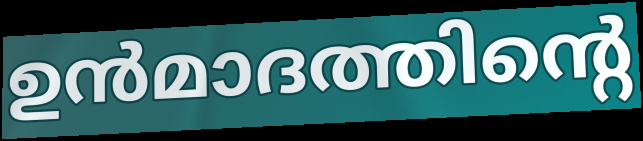
ഉൻമാദത്തിന്റെ